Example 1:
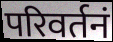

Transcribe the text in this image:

परिवर्तनं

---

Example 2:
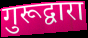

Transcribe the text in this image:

गुरूद्वारा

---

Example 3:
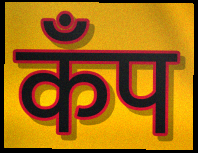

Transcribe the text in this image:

कॅंप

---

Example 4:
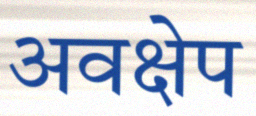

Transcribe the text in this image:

अवक्षेप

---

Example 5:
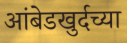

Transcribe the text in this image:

आंबेडखुर्दच्या